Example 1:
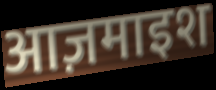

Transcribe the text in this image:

आज़माइश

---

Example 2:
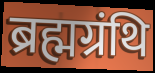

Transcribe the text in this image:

ब्रह्मग्रंथि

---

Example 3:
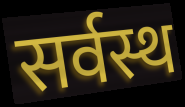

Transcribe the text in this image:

सर्वस्थ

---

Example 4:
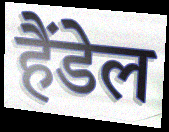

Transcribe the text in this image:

हैंडेल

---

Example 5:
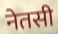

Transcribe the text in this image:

नेतसी